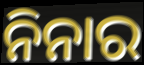
ନିନାର